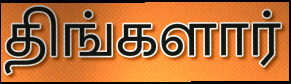
திங்களார்